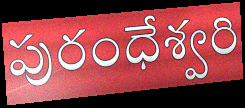
పురంధేశ్వరి